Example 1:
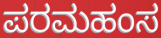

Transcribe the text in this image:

ಪರಮಹಂಸ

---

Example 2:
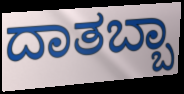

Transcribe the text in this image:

ದಾತಬ್ಬಾ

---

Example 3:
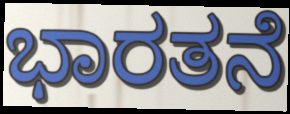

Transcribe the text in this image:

ಭಾರತನೆ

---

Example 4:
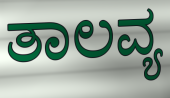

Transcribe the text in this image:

ತಾಲವ್ಯ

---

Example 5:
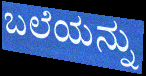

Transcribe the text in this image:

ಬಲೆಯನ್ನು